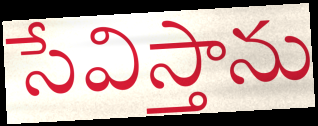
సేవిస్తాను